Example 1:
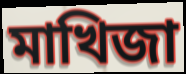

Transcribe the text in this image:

মাখিজা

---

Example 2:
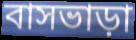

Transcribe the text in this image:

বাসভাড়া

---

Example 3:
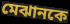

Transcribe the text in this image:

মেঝানকে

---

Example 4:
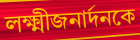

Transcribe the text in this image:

লক্ষ্মীজনার্দনকে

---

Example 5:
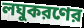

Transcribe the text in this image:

লঘুকরণের